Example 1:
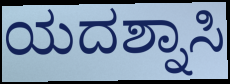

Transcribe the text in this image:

ಯದಶ್ನಾಸಿ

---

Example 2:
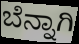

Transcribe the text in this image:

ಬೆನ್ನಾಗಿ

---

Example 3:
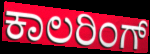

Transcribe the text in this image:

ಕಾಲರಿಂಗ್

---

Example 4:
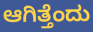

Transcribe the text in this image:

ಆಗಿತ್ತೆಂದು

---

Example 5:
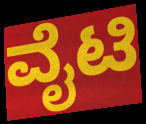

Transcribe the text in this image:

ವೈಟಿ